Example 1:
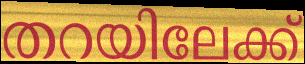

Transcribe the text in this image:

തറയിലേക്ക്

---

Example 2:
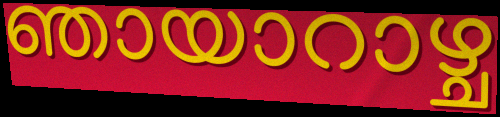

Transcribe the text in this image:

ഞായാറാഴ്ച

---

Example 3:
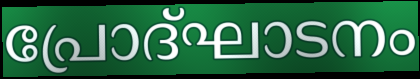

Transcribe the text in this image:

പ്രോദ്ഘാടനം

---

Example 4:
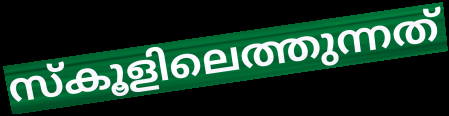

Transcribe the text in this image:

സ്കൂളിലെത്തുന്നത്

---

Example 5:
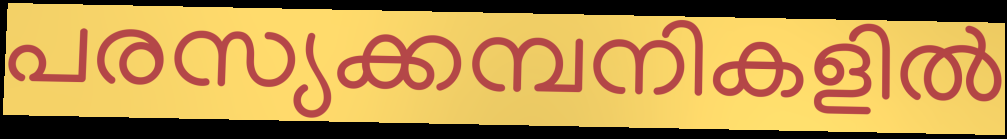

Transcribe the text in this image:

പരസ്യക്കമ്പനികളിൽ